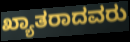
ಖ್ಯಾತರಾದವರು